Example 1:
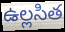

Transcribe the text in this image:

ఉల్లసిత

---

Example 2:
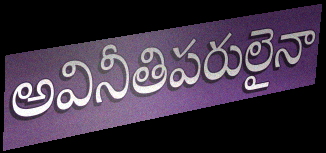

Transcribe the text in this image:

అవినీతిపరులైనా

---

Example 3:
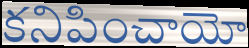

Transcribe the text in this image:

కనిపించాయో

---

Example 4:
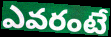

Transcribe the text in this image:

ఎవరంటే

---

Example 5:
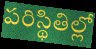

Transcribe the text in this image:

పరిస్థితిల్లో